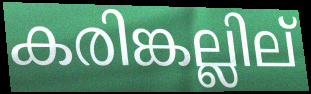
കരിങ്കല്ലില്